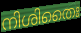
നിശിതൈഃ